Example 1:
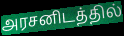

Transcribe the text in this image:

அரசனிடத்தில்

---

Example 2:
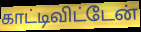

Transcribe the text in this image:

காட்டிவிட்டேன்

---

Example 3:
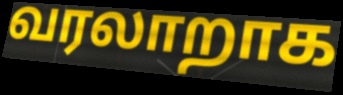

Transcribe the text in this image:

வரலாறாக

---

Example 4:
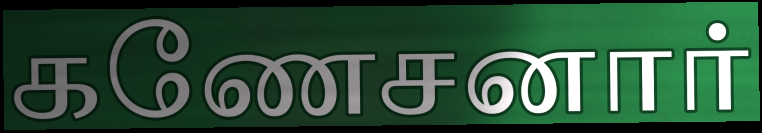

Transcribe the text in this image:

கணேசனார்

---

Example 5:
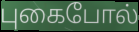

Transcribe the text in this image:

புகைபோல்